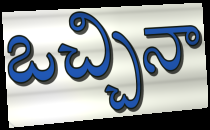
ఒచ్చినా